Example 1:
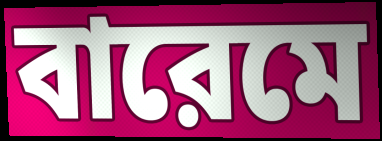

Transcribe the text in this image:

বারেমে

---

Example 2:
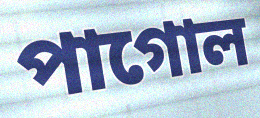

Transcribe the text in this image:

পাগোল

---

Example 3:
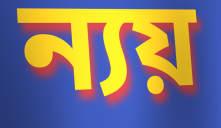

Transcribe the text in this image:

ন্যয়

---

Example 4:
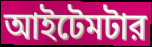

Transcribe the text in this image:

আইটেমটার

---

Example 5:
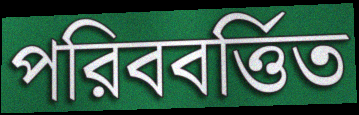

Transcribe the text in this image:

পরিববর্ত্তিত